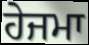
ਹੇਜਮਾ